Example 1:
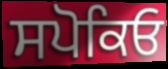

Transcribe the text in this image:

ਸਪੋਕਿਓ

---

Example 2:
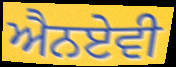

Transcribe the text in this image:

ਐਨਏਵੀ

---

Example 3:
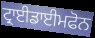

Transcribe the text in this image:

ਟ੍ਰਾਈਡਾਈਮਫੋਨ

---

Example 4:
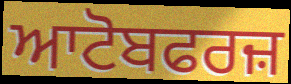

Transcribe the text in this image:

ਆਟੋਬਫਰਜ਼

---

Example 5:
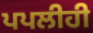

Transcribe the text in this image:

ਪਪਲੀਹੀ